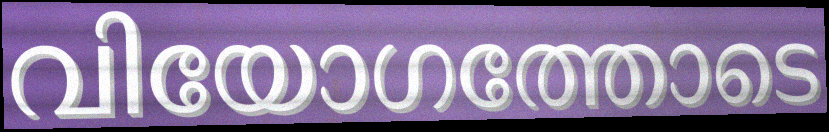
വിയോഗത്തോടെ